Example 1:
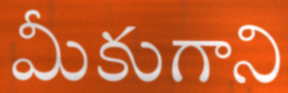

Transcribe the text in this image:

మీకుగాని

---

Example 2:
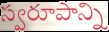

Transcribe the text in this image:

స్వరూపాన్ని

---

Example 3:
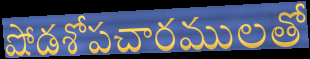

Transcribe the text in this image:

షోడశోపచారములతో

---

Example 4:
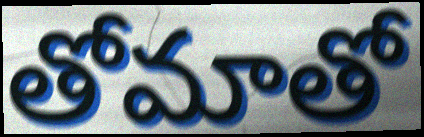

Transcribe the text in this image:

తోమాతో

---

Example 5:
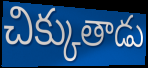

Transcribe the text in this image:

చిక్కుతాడు